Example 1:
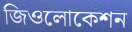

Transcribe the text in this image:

জিওলোকেশন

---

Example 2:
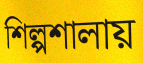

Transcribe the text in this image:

শিল্পশালায়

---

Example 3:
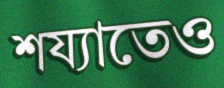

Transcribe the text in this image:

শয্যাতেও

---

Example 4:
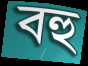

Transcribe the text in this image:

বহু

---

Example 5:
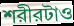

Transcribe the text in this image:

শরীরটাও